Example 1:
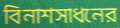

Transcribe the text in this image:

বিনাশসাধনের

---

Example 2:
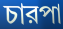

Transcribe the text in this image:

চারপা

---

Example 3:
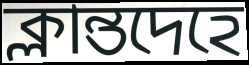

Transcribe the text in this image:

ক্লান্তদেহে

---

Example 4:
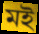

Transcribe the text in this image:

মই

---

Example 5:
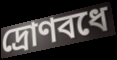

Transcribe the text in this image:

দ্রোণবধে